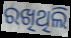
ରଖିଥିଲି